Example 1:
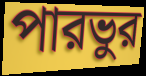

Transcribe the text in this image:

পারভুর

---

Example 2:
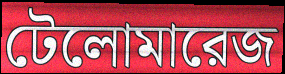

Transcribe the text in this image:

টেলোমারেজ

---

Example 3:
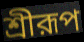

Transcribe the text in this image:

শ্রীরূপ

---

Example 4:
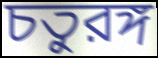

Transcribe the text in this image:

চতুরঙ্গ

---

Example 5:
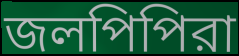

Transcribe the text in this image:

জলপিপিরা